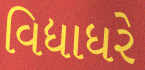
વિદ્યાધરે